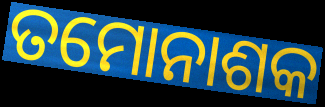
ତମୋନାଶକ